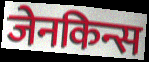
जेनकिन्स